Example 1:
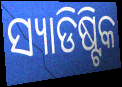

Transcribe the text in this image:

ସ୍ୟାଡିଷ୍ଟିକ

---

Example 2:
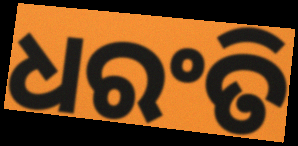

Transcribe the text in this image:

ଧରଂତି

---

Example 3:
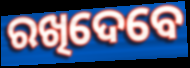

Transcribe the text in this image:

ରଖିଦେବେ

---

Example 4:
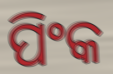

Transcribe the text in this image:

ପିଂକ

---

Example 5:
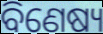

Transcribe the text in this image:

ବିଣେଷ୍ୟ